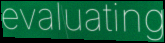
evaluating